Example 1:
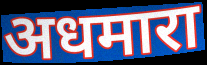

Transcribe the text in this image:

अधमारा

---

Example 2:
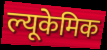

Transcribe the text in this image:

ल्यूकेमिक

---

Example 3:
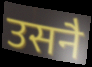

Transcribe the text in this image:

उसनै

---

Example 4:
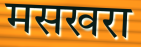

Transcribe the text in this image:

मसखरा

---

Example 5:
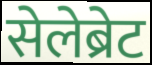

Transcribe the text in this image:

सेलेब्रेट